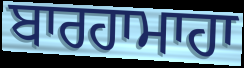
ਬਾਰਹਾਮਾਹਾ